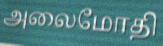
அலைமோதி